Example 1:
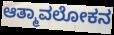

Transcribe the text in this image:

ಆತ್ಮಾವಲೋಕನ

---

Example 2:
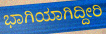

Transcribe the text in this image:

ಭಾಗಿಯಾಗಿದ್ದೀರಿ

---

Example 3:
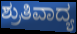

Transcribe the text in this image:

ಶ್ರುತಿವಾದ್ಯ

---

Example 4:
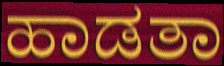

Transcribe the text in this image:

ಹಾಡತಾ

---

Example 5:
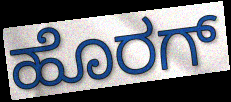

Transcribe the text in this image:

ಹೊರಗ್